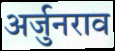
अर्जुनराव